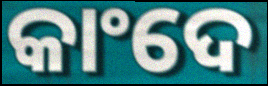
କାଂଦେ